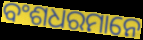
ବଂଶଧରମାନେ